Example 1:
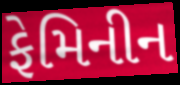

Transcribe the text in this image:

ફેમિનીન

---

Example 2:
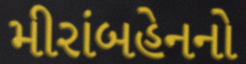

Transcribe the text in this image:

મીરાંબહેનનો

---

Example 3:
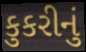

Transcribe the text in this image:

કુકરીનું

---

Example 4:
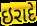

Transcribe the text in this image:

ઇરાદે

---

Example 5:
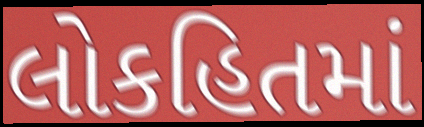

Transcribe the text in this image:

લોકહિતમાં